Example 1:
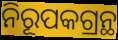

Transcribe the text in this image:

ନିରୂପକଗ୍ରନ୍ଥ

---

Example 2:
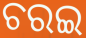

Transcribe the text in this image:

ଚରଇ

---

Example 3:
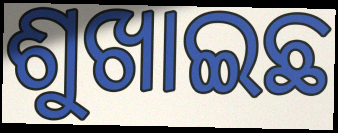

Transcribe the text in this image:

ଶୁଖାଇଛ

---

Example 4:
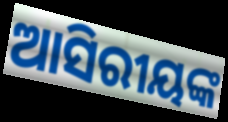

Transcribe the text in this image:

ଆସିରୀୟଙ୍କ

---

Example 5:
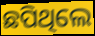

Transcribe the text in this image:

ଛପିଥିଲେ